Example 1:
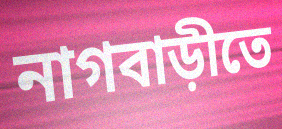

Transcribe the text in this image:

নাগবাড়ীতে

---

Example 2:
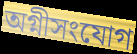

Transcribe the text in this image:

অগ্নীসংযোগ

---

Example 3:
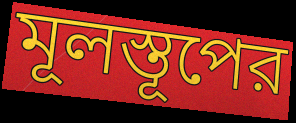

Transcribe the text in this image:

মূলস্তূপের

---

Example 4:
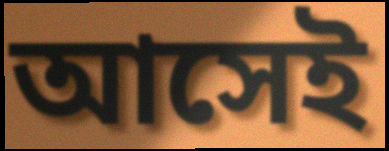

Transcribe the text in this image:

আসেই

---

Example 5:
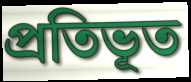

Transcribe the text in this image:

প্রতিভূত